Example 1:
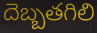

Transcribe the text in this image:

దెబ్బతగిలి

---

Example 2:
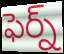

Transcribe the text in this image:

ఫెర్న్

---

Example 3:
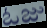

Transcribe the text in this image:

ఓజు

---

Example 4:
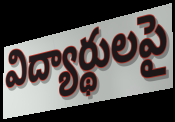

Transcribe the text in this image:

విద్యార్థులపై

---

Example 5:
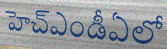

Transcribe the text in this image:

హెచ్ఎండీఏలో